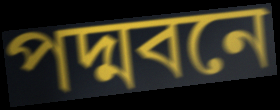
পদ্মবনে